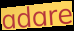
adare